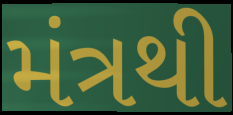
મંત્રથી